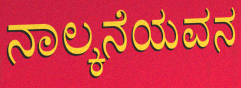
ನಾಲ್ಕನೆಯವನ